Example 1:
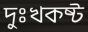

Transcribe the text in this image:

দুঃখকষ্ট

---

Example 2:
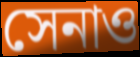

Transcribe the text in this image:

সেনাও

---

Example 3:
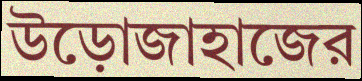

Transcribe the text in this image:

উড়োজাহাজের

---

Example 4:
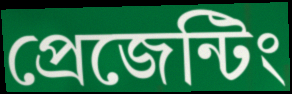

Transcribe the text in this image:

প্রেজেন্টিং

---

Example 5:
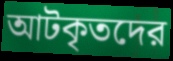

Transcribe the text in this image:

আটকৃতদের